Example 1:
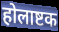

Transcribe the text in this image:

होलाष्टक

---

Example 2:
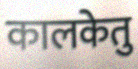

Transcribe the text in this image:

कालकेतु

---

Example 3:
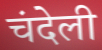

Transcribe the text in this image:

चंदेली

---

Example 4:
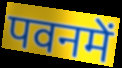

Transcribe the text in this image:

पवनमें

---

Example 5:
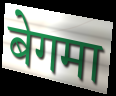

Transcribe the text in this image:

बेगमा